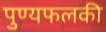
पुण्यफलकी